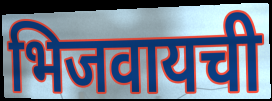
भिजवायची